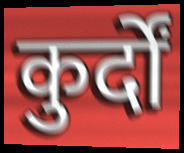
कुर्दों